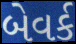
બેવર્ક